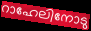
റാഹേലിനോടു